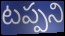
టప్పని